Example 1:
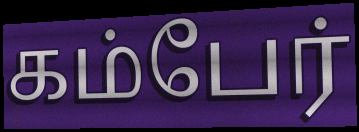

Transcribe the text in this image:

கம்பேர்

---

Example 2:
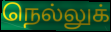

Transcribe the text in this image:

நெல்லுக்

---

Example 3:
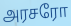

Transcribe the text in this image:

அரசரோ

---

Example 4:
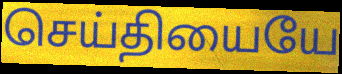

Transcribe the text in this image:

செய்தியையே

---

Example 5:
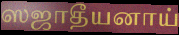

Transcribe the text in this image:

ஸஜாதீயனாய்